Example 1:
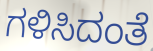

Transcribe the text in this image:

ಗಳಿಸಿದಂತೆ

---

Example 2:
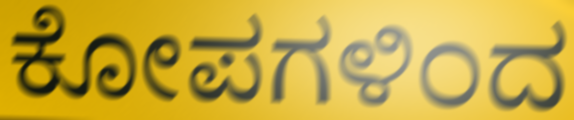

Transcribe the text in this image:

ಕೋಪಗಳಿಂದ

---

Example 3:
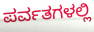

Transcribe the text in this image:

ಪರ್ವತಗಳಲ್ಲಿ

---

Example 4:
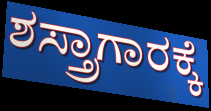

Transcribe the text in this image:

ಶಸ್ತ್ರಾಗಾರಕ್ಕೆ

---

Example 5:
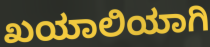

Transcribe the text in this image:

ಖಯಾಲಿಯಾಗಿ